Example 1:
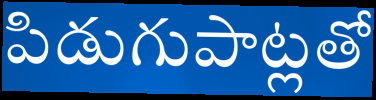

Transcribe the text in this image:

పిడుగుపాట్లతో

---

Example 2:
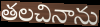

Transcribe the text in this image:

తలచినాను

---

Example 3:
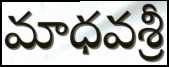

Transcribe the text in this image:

మాధవశ్రీ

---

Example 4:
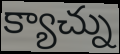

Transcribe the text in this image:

క్యాచ్ను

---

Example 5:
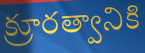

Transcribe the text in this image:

క్రూరత్వానికి